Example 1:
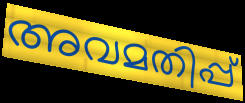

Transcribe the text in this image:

അവമതിപ്പ്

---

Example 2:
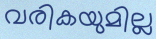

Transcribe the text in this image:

വരികയുമില്ല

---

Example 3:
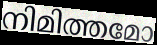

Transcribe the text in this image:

നിമിത്തമോ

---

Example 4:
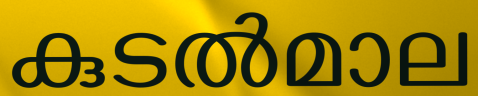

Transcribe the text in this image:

കുടൽമാല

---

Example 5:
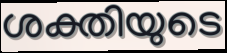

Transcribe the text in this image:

ശക്തിയുടെ